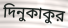
দিনুকাকুর